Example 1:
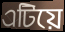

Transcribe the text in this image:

এটিয়ে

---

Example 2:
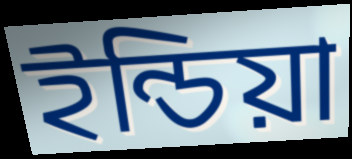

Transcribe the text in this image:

ইন্ডিয়া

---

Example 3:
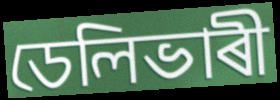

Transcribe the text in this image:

ডেলিভাৰী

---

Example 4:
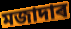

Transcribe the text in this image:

মজাদাৰ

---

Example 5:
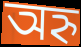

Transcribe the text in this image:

অহ্ন